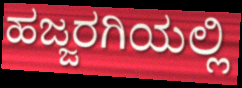
ಹಜ್ಜರಗಿಯಲ್ಲಿ